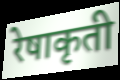
रेषाकृती